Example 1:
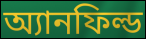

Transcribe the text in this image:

অ্যানফিল্ড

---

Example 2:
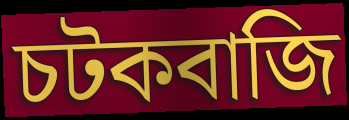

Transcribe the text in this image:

চটকবাজি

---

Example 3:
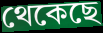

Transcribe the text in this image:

থেকেছে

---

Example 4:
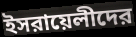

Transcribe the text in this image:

ইসরায়েলীদের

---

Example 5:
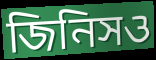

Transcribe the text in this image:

জিনিসও